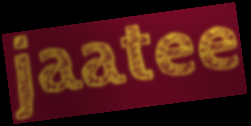
jaatee